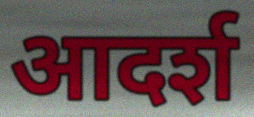
आदर्श